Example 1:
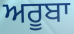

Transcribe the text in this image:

ਅਰੂਬਾ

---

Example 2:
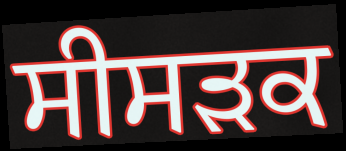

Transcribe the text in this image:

ਸੀਸੜਕ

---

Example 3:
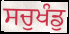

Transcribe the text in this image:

ਸਚੁਖੰਡੁ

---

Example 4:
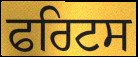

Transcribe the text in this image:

ਫਰਿਟਸ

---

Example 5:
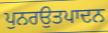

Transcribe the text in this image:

ਪੁਨਰਉਤਪਾਦਨ